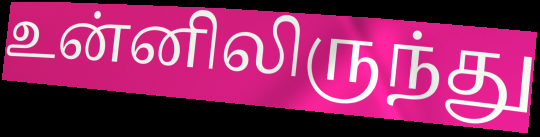
உன்னிலிருந்து